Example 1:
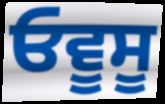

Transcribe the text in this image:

ਓਵੂਸੂ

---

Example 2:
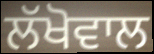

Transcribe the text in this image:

ਲੱਖੋਵਾਲ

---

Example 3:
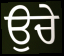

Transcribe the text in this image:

ਉਚੇ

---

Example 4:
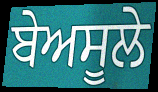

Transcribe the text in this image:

ਬੇਅਸੂਲੇ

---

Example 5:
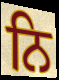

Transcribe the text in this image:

ਨਿ